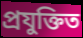
প্ৰযুক্তিত